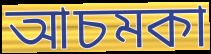
আচমকা